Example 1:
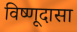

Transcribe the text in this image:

विष्णूदासा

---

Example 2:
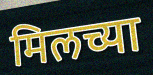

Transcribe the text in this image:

मिलच्या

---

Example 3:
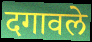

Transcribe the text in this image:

दगावले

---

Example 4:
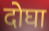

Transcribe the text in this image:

दोघा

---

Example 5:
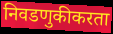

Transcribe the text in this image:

निवडणुकीकरता